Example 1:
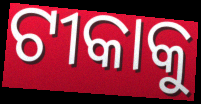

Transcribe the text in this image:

ଟୀକାକୁ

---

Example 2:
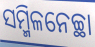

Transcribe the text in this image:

ସମ୍ମିଳନେଚ୍ଛା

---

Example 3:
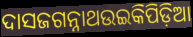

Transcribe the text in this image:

ଦାସଜଗନ୍ନାଥଉଇକିପିଡ଼ିଆ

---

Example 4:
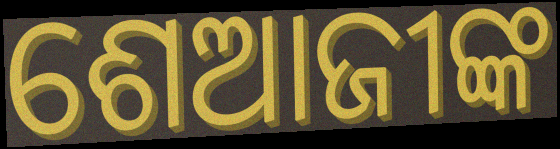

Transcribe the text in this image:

ଶେଆଜୀଙ୍କ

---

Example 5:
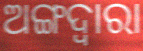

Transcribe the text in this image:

ଅଙ୍ଗଦ୍ଵାରା